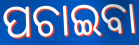
ପଚାଇବା